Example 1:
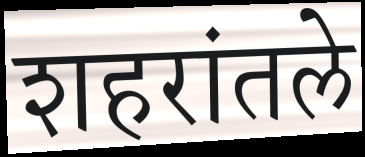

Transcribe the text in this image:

शहरांतले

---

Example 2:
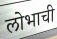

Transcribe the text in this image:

लोभाची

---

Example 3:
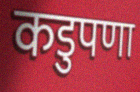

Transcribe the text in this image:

कडुपणा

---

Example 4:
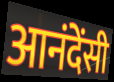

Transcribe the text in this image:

आनंदेंसी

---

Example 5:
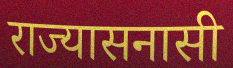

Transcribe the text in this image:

राज्यासनासी